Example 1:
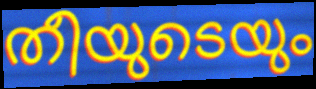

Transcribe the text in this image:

തീയുടെയും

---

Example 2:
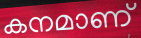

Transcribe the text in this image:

കനമാണ്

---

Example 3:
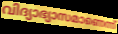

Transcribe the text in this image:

വിദ്യാഭ്യാസമാണെന്ന്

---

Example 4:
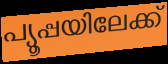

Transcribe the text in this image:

പ്യൂപ്പയിലേക്ക്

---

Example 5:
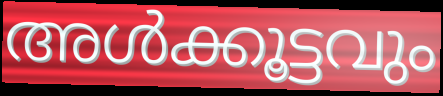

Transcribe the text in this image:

അൾക്കൂട്ടവും